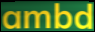
ambd